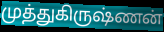
முத்துகிருஷ்ணன்